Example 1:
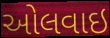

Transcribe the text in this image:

ઓલવાઇ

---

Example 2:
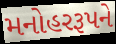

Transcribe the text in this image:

મનોહરરૂપને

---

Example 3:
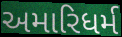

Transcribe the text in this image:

અમારિધર્મ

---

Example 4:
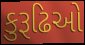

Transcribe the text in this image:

કુરૂઢિઓ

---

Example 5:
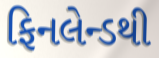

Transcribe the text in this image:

ફિનલેન્ડથી